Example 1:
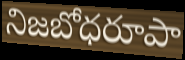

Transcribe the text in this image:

నిజబోధరూపా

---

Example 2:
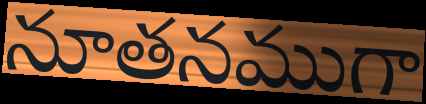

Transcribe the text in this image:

నూతనముగా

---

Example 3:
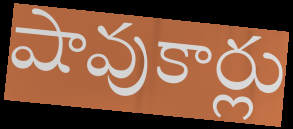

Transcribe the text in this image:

షావుకార్లు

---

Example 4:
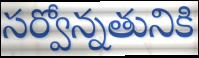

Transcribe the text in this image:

సర్వోన్నతునికి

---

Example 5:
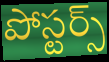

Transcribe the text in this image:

పోస్టర్స్